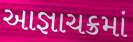
આજ્ઞાચક્રમાં